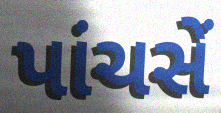
પાંચસેં